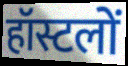
हॉस्टलों